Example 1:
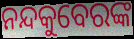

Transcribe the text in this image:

ନନ୍ଦକୁବେରଙ୍କ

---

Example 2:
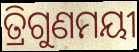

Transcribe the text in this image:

ତ୍ରିଗୁଣମୟୀ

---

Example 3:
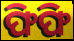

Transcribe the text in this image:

ଫିଫି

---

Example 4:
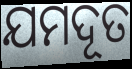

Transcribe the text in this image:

ଯମଦୂତ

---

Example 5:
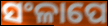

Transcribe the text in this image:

ସଂଳାପେ